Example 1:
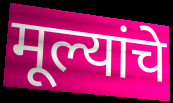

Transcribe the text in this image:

मूल्यांचे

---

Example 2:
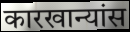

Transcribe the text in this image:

कारखान्यांस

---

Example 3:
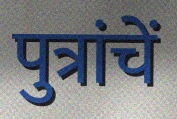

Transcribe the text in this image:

पुत्रांचें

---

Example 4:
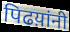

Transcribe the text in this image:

पिढय़ांनी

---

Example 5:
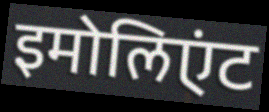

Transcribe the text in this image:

इमोलिएंट